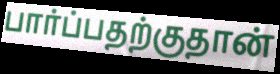
பார்ப்பதற்குதான்